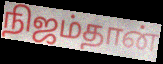
நிஜம்தான்